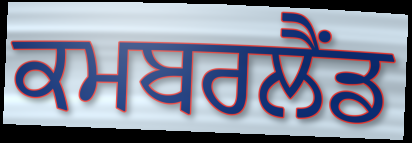
ਕਮਬਰਲੈਂਡ